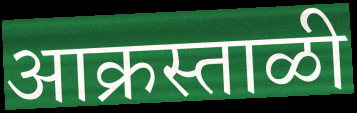
आक्रस्ताळी